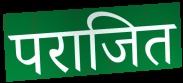
पराजित